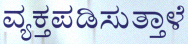
ವ್ಯಕ್ತಪಡಿಸುತ್ತಾಳೆ